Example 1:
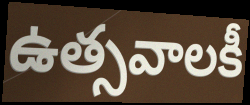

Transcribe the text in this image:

ఉత్సవాలకీ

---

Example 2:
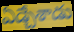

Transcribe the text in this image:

ఏడ్చేశాడు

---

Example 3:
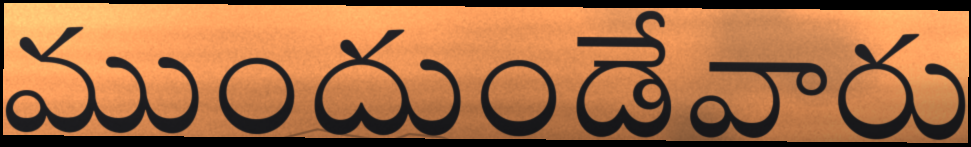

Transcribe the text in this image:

ముందుండేవారు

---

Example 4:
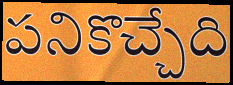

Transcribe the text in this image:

పనికొచ్చేది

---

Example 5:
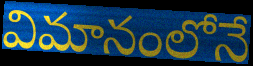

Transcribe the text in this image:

విమానంలోనే